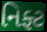
નિફ્ટ